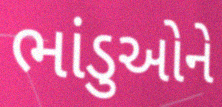
ભાંડુઓને